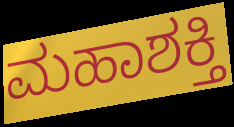
ಮಹಾಶಕ್ತಿ